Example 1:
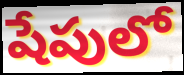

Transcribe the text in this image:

షేపులో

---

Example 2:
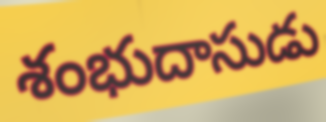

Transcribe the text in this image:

శంభుదాసుడు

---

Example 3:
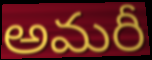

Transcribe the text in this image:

అమరీ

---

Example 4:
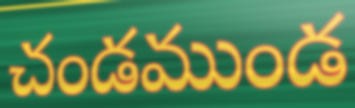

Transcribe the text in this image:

చండముండ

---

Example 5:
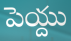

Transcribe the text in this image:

పెయ్దు